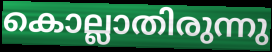
കൊല്ലാതിരുന്നു